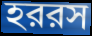
হররস